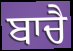
ਬਾਚੈ